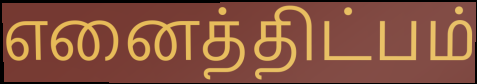
எனைத்திட்பம்